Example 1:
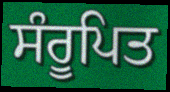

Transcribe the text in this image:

ਸੰਰੂਪਿਤ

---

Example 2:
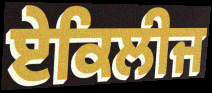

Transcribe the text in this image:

ਏਕਿਲੀਜ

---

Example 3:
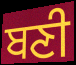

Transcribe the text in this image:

ਬਣੀ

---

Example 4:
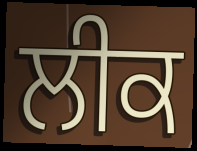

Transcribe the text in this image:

ਲੀਕ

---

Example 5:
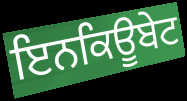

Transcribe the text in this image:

ਇਨਕਿਊਬੇਟ